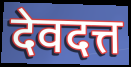
देवदत्त